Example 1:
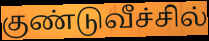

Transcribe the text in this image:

குண்டுவீச்சில்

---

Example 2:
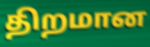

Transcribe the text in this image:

திறமான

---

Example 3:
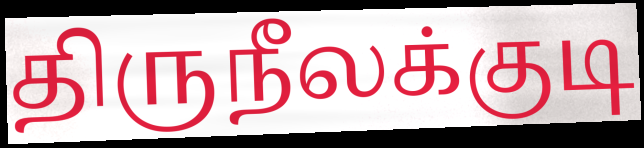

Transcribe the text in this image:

திருநீலக்குடி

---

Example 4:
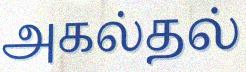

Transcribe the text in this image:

அகல்தல்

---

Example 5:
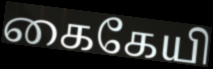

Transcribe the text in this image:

கைகேயி